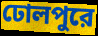
ঢোলপুরে